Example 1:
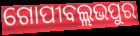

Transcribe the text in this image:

ଗୋପୀବଲ୍ଲଭପୁର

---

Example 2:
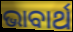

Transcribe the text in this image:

ଭାବାର୍ଥ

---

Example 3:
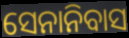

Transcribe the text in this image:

ସେନାନିବାସ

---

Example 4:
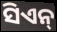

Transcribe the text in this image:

ସିଏନ୍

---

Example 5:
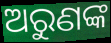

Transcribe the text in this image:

ଅରୁଣଙ୍କ